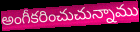
అంగీకరించుచున్నాము